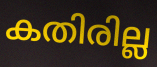
കതിരില്ല